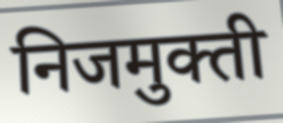
निजमुक्ती